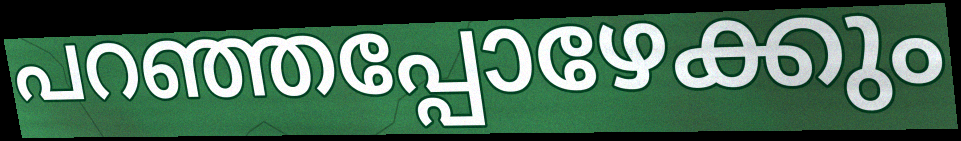
പറഞ്ഞപ്പോഴേക്കും